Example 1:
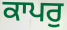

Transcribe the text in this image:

ਕਾਪਰੁ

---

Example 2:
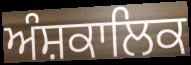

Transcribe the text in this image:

ਅੰਸ਼ਕਾਲਿਕ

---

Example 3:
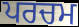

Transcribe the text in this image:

ਪਰਚਮ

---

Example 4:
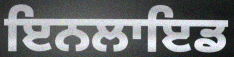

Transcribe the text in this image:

ਇਨਲਾਇਡ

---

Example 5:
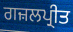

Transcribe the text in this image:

ਗਜ਼ਲਪ੍ਰੀਤ